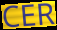
CER